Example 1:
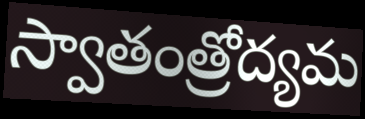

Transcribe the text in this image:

స్వాతంత్రోద్యమ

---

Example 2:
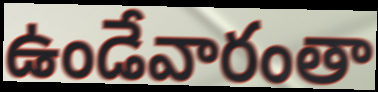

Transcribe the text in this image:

ఉండేవారంతా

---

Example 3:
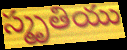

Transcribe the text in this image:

స్మృతియు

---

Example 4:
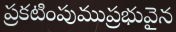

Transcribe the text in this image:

ప్రకటింపుముప్రభువైన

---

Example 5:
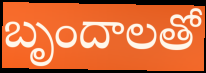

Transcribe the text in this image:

బృందాలతో